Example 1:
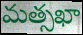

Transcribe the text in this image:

మత్సఖా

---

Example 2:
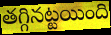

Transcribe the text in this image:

తగ్గినట్టయింది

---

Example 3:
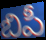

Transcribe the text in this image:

బిపీ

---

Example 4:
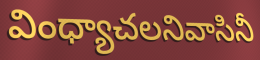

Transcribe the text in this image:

వింధ్యాచలనివాసినీ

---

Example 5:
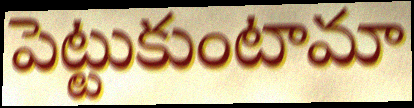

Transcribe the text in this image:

పెట్టుకుంటామా